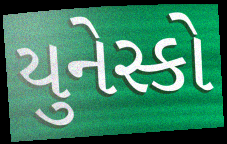
યુનેસ્કો